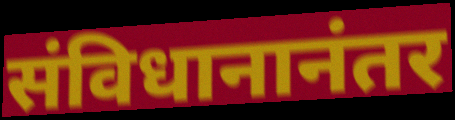
संविधानानंतर